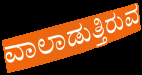
ವಾಲಾಡುತ್ತಿರುವ